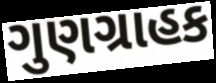
ગુણગ્રાહક